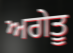
ਅਗੇਤੂ